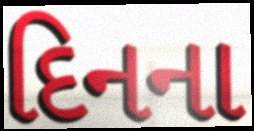
દિનના